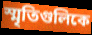
স্মৃতিগুলিকে